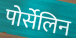
पोर्सेलिन